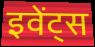
इवेंट्स